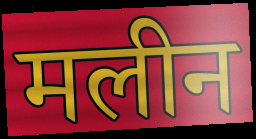
मलीन